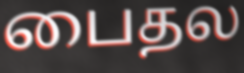
பைதல